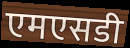
एमएसडी